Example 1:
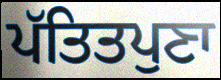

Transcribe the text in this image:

ਪੱਤਿਤਪੁਣਾ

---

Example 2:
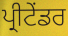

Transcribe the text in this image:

ਪ੍ਰੀਟੇਂਡਰ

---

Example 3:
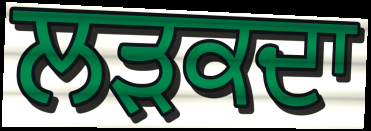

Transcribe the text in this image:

ਲੜਕਦਾ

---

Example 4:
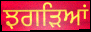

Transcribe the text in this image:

ਝਗੜਿਆਂ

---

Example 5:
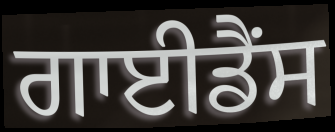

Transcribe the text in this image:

ਗਾਈਡੈਂਸ